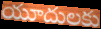
యూదులకు